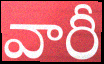
వారీ